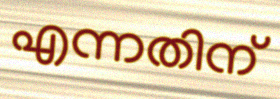
എന്നതിന്